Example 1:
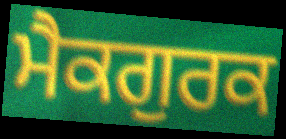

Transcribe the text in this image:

ਮੈਕਗੁਰਕ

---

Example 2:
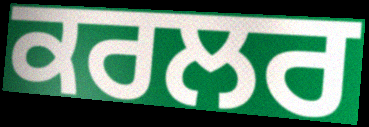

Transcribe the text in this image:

ਕਰਲਰ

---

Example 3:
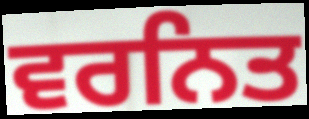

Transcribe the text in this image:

ਵਰਨਿਤ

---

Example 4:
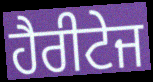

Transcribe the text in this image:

ਹੈਰੀਟੇਜ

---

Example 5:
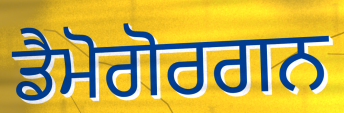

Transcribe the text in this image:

ਡੈਮੋਗੋਰਗਨ